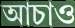
আচাও